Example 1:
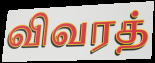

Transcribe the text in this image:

விவரத்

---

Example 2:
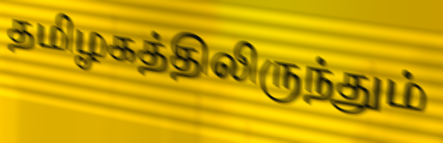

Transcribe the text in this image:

தமிழகத்திலிருந்தும்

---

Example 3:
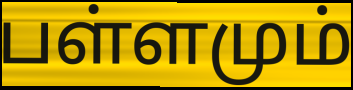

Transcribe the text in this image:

பள்ளமும்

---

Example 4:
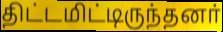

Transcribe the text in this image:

திட்டமிட்டிருந்தனர்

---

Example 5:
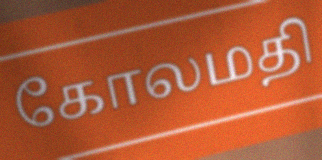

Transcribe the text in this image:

கோலமதி